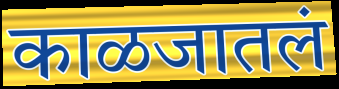
काळजातलं